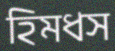
হিমধস